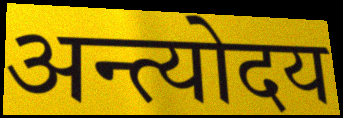
अन्त्योदय